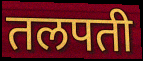
तलपती